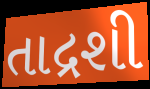
તાદ્રશી